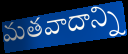
మతవాదాన్ని